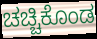
ಚಚ್ಚಿಕೊಂಡ